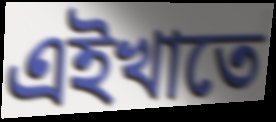
এইখাতে